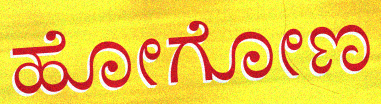
ಹೋಗೋಣ